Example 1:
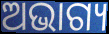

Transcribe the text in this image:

ଅଭାଗ୍ୟ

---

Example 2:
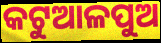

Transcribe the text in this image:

କଟୁଆଳପୁଅ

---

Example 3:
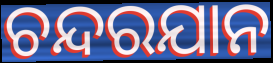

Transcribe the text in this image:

ଚନ୍ଦରଯାନ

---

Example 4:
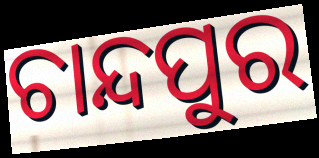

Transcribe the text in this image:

ଚାନ୍ଦପୁର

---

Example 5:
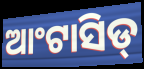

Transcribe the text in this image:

ଆଂଟାସିଡ୍